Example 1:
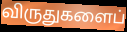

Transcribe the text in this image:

விருதுகளைப்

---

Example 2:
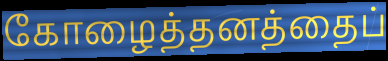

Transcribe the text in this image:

கோழைத்தனத்தைப்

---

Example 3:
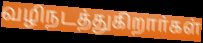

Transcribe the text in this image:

வழிநடத்துகிறார்கள்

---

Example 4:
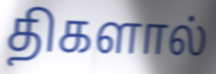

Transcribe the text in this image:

திகளால்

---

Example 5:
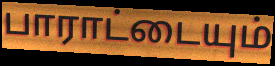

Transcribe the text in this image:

பாராட்டையும்